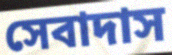
সেবাদাস